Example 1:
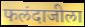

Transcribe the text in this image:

फलंदाजीला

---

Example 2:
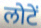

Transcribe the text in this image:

लोटें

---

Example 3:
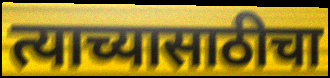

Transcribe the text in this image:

त्याच्यासाठीचा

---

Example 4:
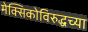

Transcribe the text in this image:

मेक्सिकोविरुद्धच्या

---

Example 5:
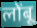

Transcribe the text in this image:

लोंबू